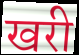
खरी